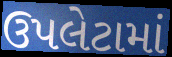
ઉપલેટામાં